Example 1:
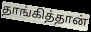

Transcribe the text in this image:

தாங்கித்தான்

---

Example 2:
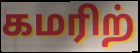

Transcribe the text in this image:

கமரிற்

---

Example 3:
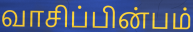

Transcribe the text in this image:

வாசிப்பின்பம்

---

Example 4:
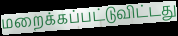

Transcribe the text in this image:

மறைக்கப்பட்டுவிட்டது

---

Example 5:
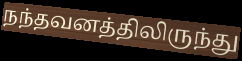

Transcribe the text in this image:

நந்தவனத்திலிருந்து